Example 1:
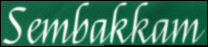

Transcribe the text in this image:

Sembakkam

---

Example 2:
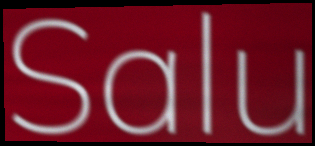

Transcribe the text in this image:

Salu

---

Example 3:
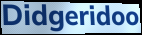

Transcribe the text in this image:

Didgeridoo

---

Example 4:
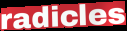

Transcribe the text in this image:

radicles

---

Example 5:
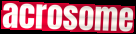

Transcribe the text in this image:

acrosome